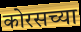
कोरसच्या